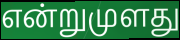
என்றுமுளது